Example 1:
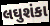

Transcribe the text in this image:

લઘુશંકા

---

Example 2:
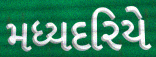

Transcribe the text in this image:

મધ્યદરિયે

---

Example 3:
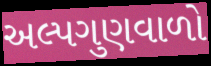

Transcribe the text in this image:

અલ્પગુણવાળો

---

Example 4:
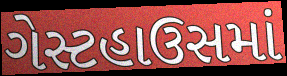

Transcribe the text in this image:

ગેસ્ટહાઉસમાં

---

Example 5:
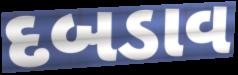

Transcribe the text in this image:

દબડાવ